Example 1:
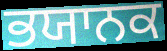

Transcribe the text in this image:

ਭਯਾਨਕ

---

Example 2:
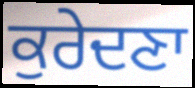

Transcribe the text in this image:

ਕੁਰੇਦਣਾ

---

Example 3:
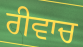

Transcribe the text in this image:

ਰੀਵਾਚ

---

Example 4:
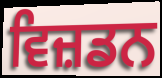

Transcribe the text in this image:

ਵਿਜ਼ਡਨ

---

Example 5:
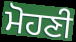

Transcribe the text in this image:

ਮੋਹਣੀ